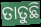
ତାତୁଛି